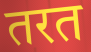
तरत